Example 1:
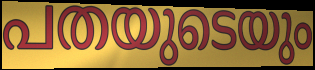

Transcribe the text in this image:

പതയുടെയും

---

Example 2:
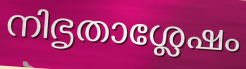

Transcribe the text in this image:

നിഭൃതാശ്ലേഷം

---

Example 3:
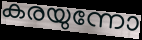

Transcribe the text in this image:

കരയുന്നോ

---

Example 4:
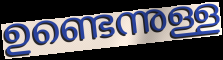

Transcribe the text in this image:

ഉണ്ടെന്നുള്ള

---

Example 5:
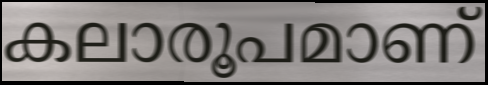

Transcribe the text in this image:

കലാരൂപമാണ്